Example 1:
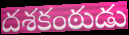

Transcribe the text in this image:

దశకంఠుడు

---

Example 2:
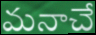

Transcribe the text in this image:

మనాచే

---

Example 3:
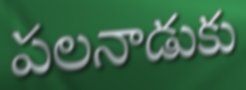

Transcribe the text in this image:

పలనాడుకు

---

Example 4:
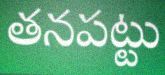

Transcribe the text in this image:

తనపట్టు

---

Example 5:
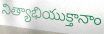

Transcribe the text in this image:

నిత్యాభియుక్తానాం